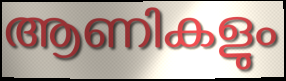
ആണികളും